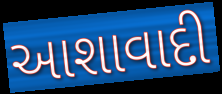
આશાવાદી